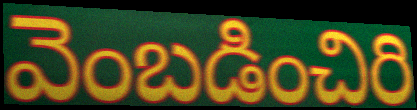
వెంబడించిరి